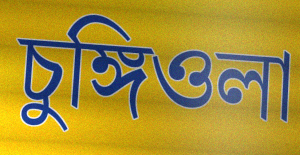
চুঙ্গিওলা